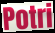
Potri